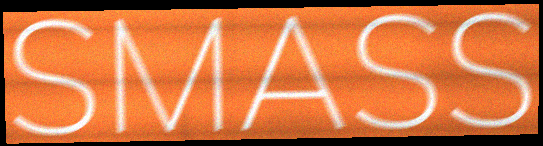
SMASS